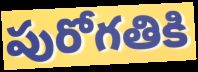
పురోగతికి